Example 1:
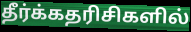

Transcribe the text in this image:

தீர்க்கதரிசிகளில்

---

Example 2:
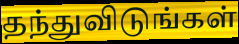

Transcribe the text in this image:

தந்துவிடுங்கள்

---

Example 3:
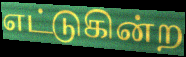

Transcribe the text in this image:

எட்டுகின்ற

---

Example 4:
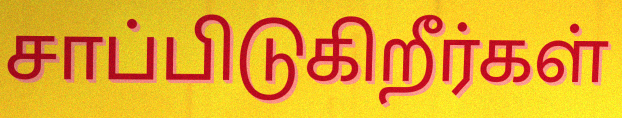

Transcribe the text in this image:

சாப்பிடுகிறீர்கள்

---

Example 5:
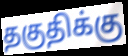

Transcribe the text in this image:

தகுதிக்கு